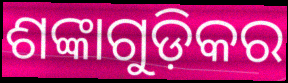
ଶଙ୍କାଗୁଡ଼ିକର